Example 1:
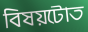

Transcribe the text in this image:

বিষয়টোত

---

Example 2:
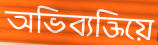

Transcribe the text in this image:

অভিব্যক্তিয়ে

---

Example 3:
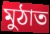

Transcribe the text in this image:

মুঠাত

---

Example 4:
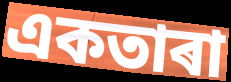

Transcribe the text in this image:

একতাৰা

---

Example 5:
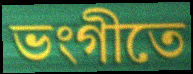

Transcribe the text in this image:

ভংগীতে